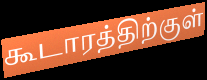
கூடாரத்திற்குள்